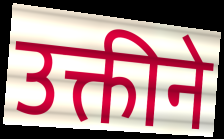
उक्तीने